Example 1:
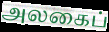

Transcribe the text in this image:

அலகைப்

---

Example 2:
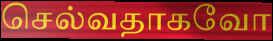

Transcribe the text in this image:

செல்வதாகவோ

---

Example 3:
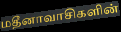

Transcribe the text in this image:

மதீனாவாசிகளின்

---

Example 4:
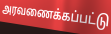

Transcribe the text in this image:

அரவணைக்கப்பட்டு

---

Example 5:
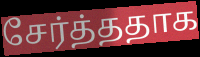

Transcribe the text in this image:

சேர்த்ததாக